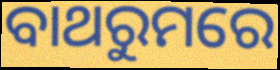
ବାଥରୁମରେ